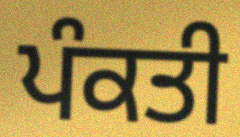
ਪੰਕਤੀ